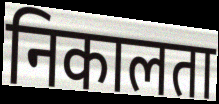
निकालता